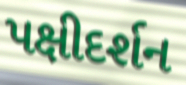
પક્ષીદર્શન